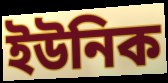
ইউনিক